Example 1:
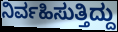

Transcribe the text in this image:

ನಿರ್ವಹಿಸುತ್ತಿದ್ದು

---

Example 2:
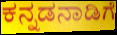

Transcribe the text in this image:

ಕನ್ನಡನಾಡಿಗೆ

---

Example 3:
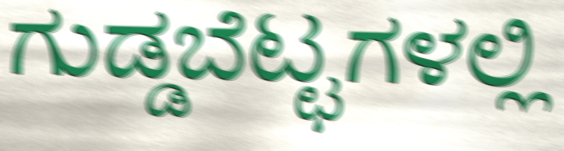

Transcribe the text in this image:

ಗುಡ್ಡಬೆಟ್ಟಗಳಲ್ಲಿ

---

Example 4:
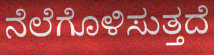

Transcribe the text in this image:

ನೆಲೆಗೊಳಿಸುತ್ತದೆ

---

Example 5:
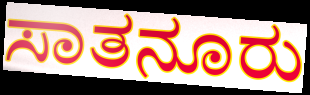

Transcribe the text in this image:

ಸಾತನೂರು